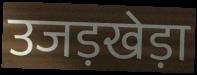
उजड़खेड़ा